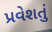
પ્રવેશતું